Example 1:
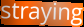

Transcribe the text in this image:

straying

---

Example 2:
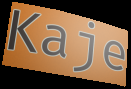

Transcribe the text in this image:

Kaje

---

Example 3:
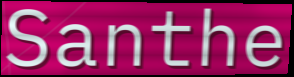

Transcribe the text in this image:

Santhe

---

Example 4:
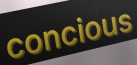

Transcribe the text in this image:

concious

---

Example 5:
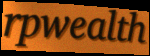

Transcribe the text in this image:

rpwealth